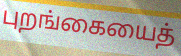
புறங்கையைத்